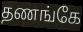
தணங்கே